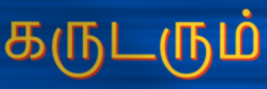
கருடரும்